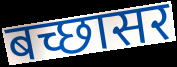
बच्छासर